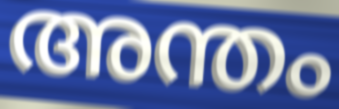
അന്തം